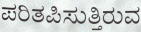
ಪರಿತಪಿಸುತ್ತಿರುವ